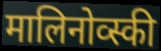
मालिनोव्स्की